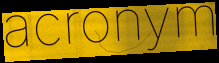
acronym